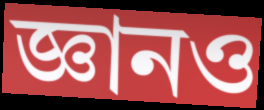
জ্ঞানও